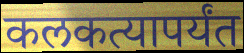
कलकत्यापर्यंत